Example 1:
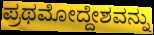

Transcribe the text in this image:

ಪ್ರಥಮೋದ್ದೇಶವನ್ನು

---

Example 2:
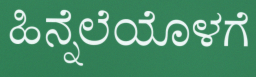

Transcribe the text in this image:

ಹಿನ್ನೆಲೆಯೊಳಗೆ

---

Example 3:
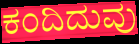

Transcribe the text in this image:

ಕಂದಿದುವು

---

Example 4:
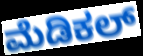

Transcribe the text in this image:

ಮೆಡಿಕಲ್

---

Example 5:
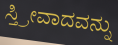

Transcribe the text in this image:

ಸ್ತ್ರೀವಾದವನ್ನು